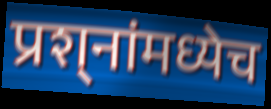
प्रश्नांमध्येच